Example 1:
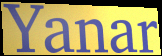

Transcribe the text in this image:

Yanar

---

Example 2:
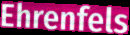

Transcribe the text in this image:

Ehrenfels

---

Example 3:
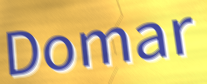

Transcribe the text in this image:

Domar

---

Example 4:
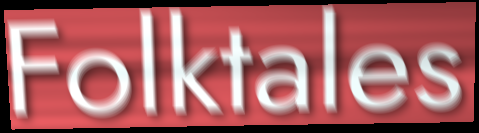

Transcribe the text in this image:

Folktales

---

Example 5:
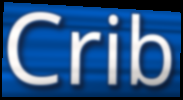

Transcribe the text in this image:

Crib